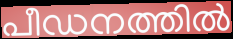
പീഡനത്തിൽ